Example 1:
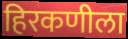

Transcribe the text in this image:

हिरकणीला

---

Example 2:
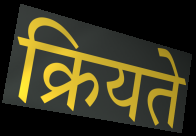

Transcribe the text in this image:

क्रियते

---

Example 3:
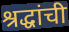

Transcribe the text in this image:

श्रद्धांची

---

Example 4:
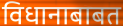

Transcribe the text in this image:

विधानाबाबत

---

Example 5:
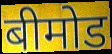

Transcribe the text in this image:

बीमोड